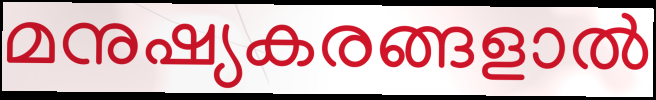
മനുഷ്യകരങ്ങളാൽ